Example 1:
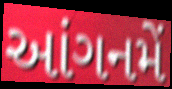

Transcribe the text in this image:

આંગનમેં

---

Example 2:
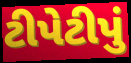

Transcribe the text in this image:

ટીપેટીપું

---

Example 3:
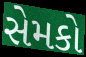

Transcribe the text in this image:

સેમકો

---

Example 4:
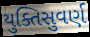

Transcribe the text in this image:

યુક્તિસુવર્ણ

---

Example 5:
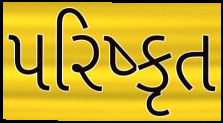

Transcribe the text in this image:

પરિષ્કૃત